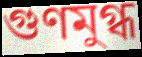
গুণমুগ্ধ